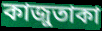
কাজুতাকা